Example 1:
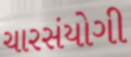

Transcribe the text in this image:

ચારસંયોગી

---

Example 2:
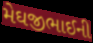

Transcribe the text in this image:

મેઘજીભાઈની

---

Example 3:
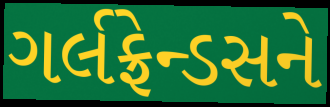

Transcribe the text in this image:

ગર્લફ્રેન્ડસને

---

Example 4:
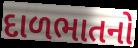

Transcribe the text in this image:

દાળભાતનો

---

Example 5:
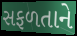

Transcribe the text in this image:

સફળતાને